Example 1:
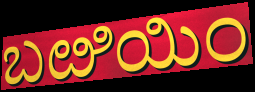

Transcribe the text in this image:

ಬೞಿಯಿಂ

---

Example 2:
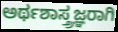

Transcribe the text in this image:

ಅರ್ಥಶಾಸ್ತ್ರಜ್ಞರಾಗಿ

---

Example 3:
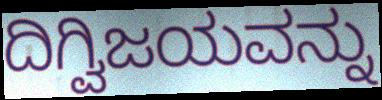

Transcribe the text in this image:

ದಿಗ್ವಿಜಯವನ್ನು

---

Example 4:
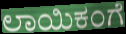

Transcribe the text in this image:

ಲಾಯಿಕಂಗೆ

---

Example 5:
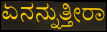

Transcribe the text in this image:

ಏನನ್ನುತ್ತೀರಾ